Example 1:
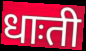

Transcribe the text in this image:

धाःती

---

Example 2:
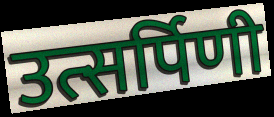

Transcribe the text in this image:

उत्सर्पिणी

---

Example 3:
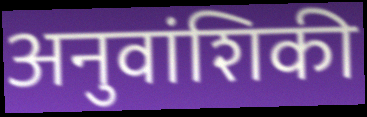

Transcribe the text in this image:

अनुवांशिकी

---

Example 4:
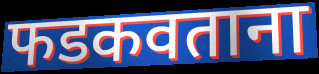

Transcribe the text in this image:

फडकवताना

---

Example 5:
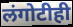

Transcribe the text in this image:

लंगोटीही